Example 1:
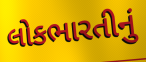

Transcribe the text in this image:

લોકભારતીનું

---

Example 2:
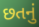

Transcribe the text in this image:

છતનું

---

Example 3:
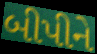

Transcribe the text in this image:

બીપીને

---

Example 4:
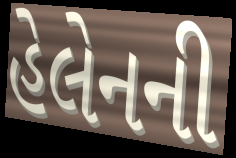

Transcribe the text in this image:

હેલેનની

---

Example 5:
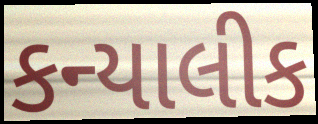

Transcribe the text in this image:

કન્યાલીક